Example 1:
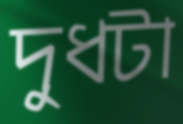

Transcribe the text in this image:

দুধটা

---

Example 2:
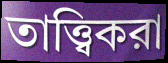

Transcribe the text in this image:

তাত্ত্বিকরা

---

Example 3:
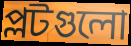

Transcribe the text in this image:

প্লটগুলো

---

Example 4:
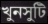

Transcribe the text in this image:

খুনসুটি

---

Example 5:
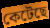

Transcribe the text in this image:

কেটেছে